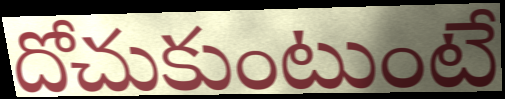
దోచుకుంటుంటే